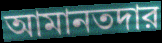
আমানতদার